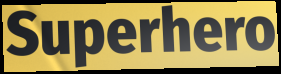
Superhero